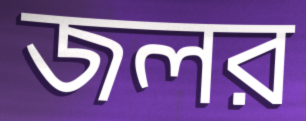
জলর